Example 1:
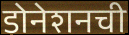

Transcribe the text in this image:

डोनेशनची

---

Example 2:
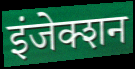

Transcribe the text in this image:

इंजेक्शन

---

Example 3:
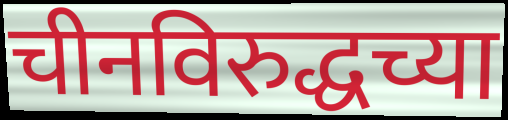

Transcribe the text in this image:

चीनविरुद्धच्या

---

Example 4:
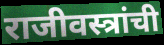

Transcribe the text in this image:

राजीवस्त्रांची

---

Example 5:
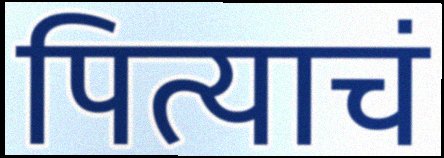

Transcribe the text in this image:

पित्याचं